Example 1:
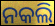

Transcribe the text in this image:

ନକଲି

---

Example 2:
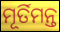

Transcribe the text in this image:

ମୂର୍ତିମନ୍ତ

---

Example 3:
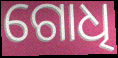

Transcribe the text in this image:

ଗୋଧି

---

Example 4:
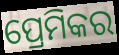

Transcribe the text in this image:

ପ୍ରେମିକର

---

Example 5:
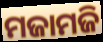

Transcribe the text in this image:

ମଜାମଜି